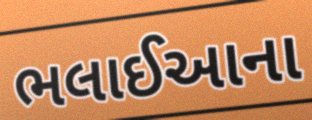
ભલાઈઆના